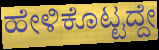
ಹೇಳಿಕೊಟ್ಟದ್ದೇ